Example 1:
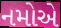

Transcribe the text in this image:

નમોએ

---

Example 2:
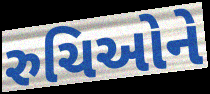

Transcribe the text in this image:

રુચિઓને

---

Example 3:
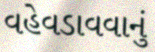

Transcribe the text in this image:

વહેવડાવવાનું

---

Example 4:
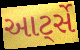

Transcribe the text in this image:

આર્ટ્સે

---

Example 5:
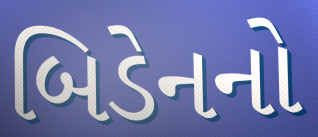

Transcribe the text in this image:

બિડેનનો